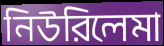
নিউরিলেমা